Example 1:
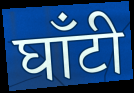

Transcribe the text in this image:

घाँटी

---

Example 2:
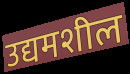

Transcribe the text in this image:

उद्यमशील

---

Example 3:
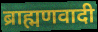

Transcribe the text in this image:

ब्राह्मणवादी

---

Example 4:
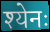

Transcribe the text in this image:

श्येनः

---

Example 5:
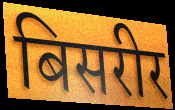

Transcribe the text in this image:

बिसरीर